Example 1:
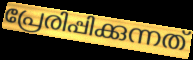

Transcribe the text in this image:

പ്രേരിപ്പിക്കുന്നത്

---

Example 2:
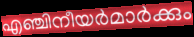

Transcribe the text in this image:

എഞ്ചിനീയർമാർക്കും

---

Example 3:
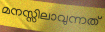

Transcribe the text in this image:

മനസ്സിലാവുന്നത്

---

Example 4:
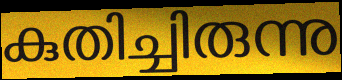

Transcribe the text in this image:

കുതിച്ചിരുന്നു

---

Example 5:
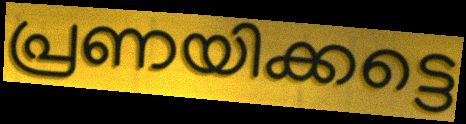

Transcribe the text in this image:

പ്രണയിക്കട്ടെ